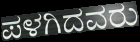
ಪಳಗಿದವರು